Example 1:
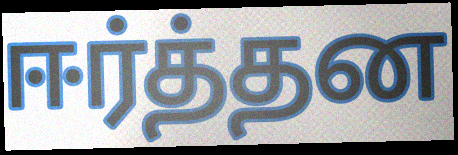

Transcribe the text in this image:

ஈர்த்தன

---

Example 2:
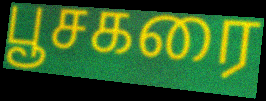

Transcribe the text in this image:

பூசகரை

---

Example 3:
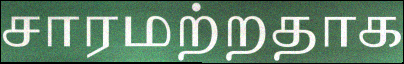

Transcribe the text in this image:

சாரமற்றதாக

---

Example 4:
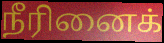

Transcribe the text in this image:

நீரினைக்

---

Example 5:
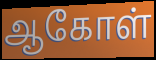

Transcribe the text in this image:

ஆகோள்